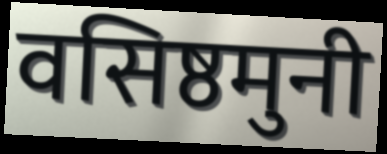
वसिष्ठमुनी